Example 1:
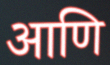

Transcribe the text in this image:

आणि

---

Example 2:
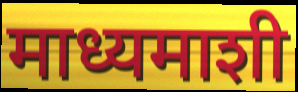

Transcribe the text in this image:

माध्यमाशी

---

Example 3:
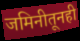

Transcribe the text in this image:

जमिनीतूनही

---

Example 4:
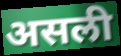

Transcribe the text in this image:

असली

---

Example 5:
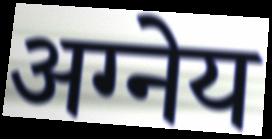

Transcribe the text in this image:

अग्नेय